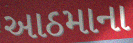
આઠમાના